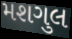
મશગુલ